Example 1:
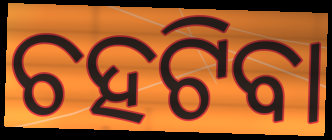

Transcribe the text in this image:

ଚହଟିବା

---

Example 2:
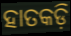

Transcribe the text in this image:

ହାତକଡ଼ି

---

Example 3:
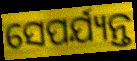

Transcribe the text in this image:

ସେପର୍ଯ୍ୟନ୍ତ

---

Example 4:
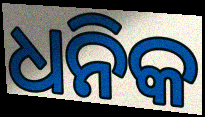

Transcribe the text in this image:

ଧନିକ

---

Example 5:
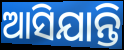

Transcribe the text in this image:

ଆସିଯାନ୍ତି